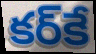
కర్‌కే